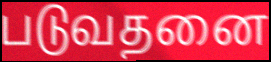
படுவதனை